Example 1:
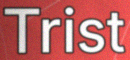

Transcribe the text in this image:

Trist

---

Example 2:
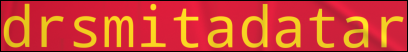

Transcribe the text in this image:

drsmitadatar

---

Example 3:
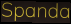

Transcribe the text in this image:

Spanda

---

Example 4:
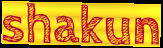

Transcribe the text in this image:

shakun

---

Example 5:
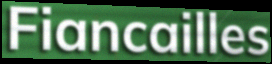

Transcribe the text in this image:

Fiancailles